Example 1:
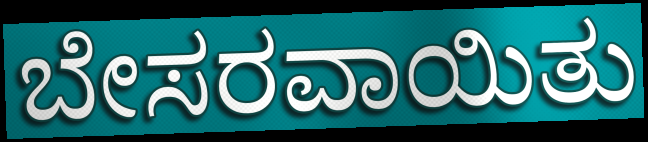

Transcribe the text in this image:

ಬೇಸರವಾಯಿತು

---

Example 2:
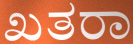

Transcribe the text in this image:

ಖತರಾ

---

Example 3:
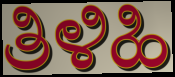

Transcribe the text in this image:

ತಿಳಿಹಿ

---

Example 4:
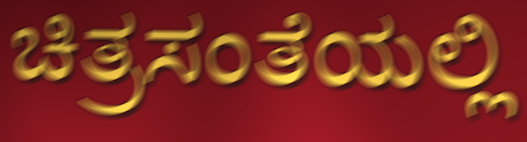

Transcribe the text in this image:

ಚಿತ್ರಸಂತೆಯಲ್ಲಿ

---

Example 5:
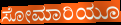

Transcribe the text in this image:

ಸೋಮಾರಿಯೂ